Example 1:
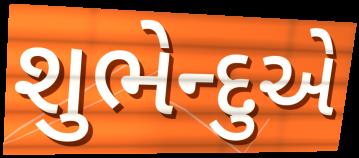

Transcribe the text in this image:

શુભેન્દુએ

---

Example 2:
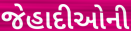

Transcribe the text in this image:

જેહાદીઓની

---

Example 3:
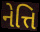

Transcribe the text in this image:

નેત્તિ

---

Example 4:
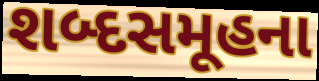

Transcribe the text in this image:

શબ્દસમૂહના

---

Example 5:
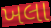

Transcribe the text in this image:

ખલા